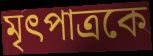
মৃৎপাত্রকে